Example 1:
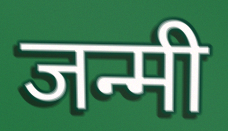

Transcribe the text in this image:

जन्मी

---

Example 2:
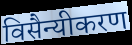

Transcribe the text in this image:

विसैन्यीकरण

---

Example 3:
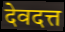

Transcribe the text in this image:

देवदत्त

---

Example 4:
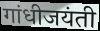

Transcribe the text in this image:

गांधीजयंती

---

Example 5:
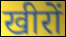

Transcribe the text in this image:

खीरों